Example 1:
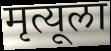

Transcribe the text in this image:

मृत्यूला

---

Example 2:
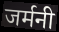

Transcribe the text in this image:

जर्मनी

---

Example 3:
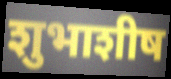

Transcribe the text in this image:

शुभाशीष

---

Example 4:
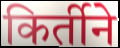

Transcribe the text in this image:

किर्तीने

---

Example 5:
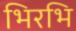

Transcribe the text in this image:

भिरभि